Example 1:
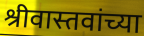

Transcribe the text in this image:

श्रीवास्तवांच्या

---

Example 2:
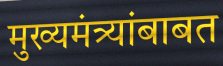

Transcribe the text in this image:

मुख्यमंत्र्यांबाबत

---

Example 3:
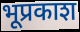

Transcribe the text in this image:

भूप्रकाश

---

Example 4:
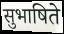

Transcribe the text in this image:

सुभाषिते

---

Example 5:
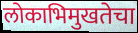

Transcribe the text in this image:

लोकाभिमुखतेचा